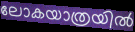
ലോകയാത്രയിൽ